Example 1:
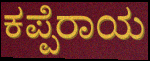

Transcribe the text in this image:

ಕಪ್ಪೆರಾಯ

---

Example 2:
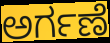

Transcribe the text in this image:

ಅರ್ಗಣೆ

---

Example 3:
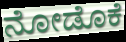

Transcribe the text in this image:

ನೋಡೊಕೆ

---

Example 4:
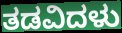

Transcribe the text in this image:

ತಡವಿದಳು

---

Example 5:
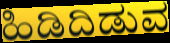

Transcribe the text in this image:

ಹಿಡಿದಿಡುವ